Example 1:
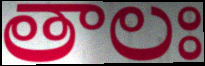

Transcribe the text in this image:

తాలః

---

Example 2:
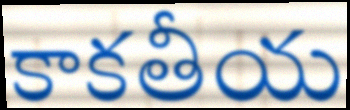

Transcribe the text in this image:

కాకతీయ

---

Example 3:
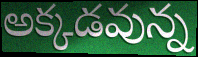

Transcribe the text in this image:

అక్కడవున్న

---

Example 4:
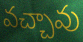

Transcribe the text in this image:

వచ్చావు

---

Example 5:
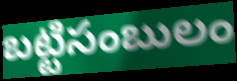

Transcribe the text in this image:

బట్టిసంబులం